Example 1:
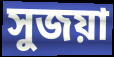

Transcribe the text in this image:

সুজয়া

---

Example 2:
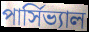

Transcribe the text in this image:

পার্সিভ্যাল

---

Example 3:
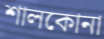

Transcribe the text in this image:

শালকোনা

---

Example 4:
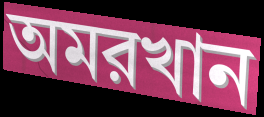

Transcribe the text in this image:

অমরখান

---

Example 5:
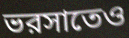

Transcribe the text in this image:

ভরসাতেও